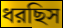
ধরছিস